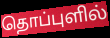
தொப்புளில்